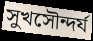
সুখসৌন্দর্য